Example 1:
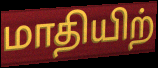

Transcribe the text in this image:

மாதியிற்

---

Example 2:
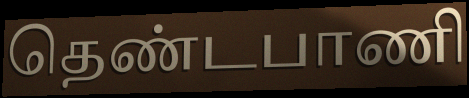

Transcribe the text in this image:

தெண்டபாணி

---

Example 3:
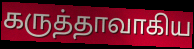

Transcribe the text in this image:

கருத்தாவாகிய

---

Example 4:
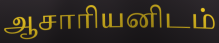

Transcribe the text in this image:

ஆசாரியனிடம்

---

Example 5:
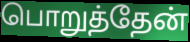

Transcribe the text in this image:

பொறுத்தேன்